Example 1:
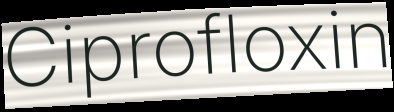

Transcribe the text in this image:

Ciprofloxin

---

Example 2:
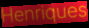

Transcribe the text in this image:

Henriques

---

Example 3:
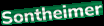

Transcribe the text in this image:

Sontheimer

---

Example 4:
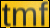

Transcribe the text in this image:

tmf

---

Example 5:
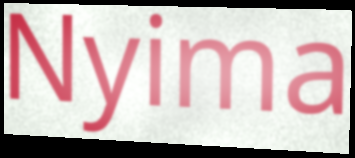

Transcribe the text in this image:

Nyima